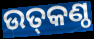
ଉତ୍‌କଣ୍ଠ